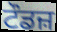
ਟੌਡਜ਼